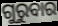
ଗୁରୁବାର